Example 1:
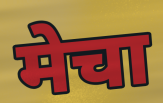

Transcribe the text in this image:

मेचा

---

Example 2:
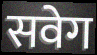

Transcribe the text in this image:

सवेग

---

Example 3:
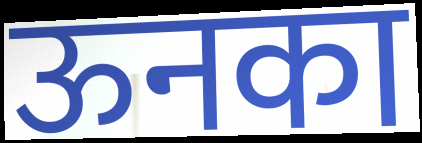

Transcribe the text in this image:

ऊनका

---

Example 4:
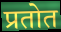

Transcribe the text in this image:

प्रतोत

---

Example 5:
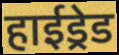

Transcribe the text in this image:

हाईड्रेड